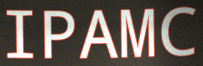
IPAMC